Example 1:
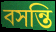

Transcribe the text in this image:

বসন্তি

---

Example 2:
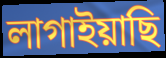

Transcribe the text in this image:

লাগাইয়াছি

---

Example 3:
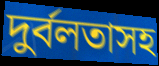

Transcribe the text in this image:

দুর্বলতাসহ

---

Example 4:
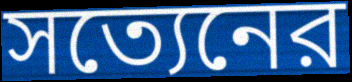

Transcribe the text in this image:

সত্যেনের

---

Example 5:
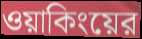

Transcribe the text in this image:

ওয়াকিংয়ের